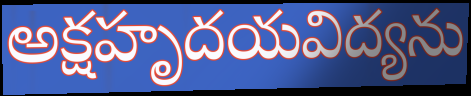
అక్షహృదయవిద్యను